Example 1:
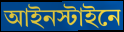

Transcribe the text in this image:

আইনস্টাইনে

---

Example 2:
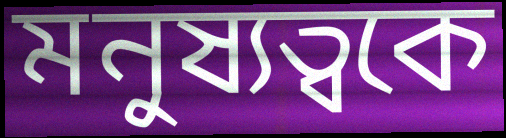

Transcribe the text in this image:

মনুষ্যত্বকে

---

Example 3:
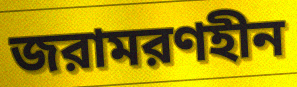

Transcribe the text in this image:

জরামরণহীন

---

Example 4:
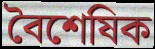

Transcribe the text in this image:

বৈশেষিক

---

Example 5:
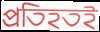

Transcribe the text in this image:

প্রতিহতই